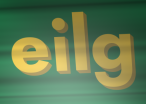
eilg